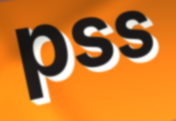
pss